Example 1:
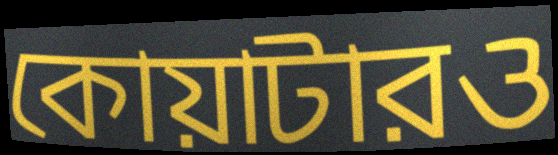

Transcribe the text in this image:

কোয়াটারও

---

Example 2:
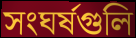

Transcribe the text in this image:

সংঘর্ষগুলি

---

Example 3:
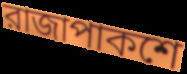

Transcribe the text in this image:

রাজাপাকশে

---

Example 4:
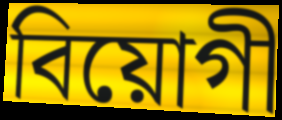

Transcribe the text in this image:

বিয়োগী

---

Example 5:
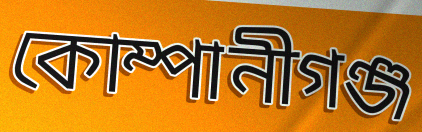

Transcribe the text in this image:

কোম্পানীগঞ্জ